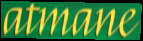
atmane